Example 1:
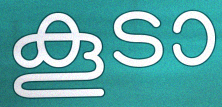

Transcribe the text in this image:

കൂടാ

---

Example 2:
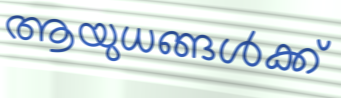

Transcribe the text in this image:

ആയുധങ്ങൾക്ക്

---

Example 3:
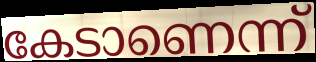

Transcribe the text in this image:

കേടാണെന്ന്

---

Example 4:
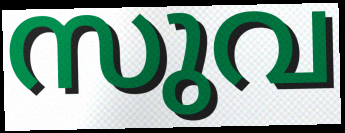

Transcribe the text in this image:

സുവ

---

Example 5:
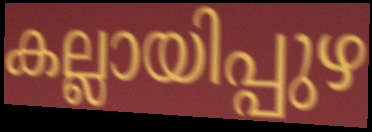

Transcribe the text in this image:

കല്ലായിപ്പുഴ